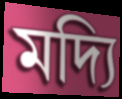
মদ্যি